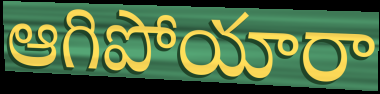
ఆగిపోయారా